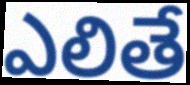
ఎలితే